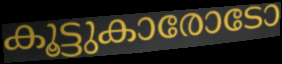
കൂട്ടുകാരോടോ